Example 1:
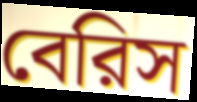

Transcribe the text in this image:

বেরিস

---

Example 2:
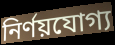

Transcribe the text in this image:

নির্ণয়যোগ্য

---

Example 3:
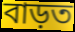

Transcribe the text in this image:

বাড়ত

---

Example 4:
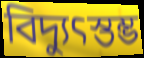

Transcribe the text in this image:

বিদ্যুৎস্তম্ভ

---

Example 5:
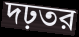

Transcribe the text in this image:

দঢ়তর